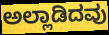
ಅಲ್ಲಾಡಿದವು